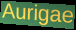
Aurigae